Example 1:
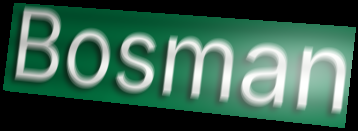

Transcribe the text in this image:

Bosman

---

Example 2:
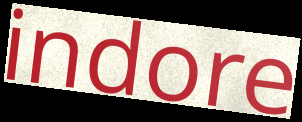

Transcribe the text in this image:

indore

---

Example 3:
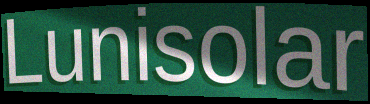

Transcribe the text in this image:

Lunisolar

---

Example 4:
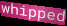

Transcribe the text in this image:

whipped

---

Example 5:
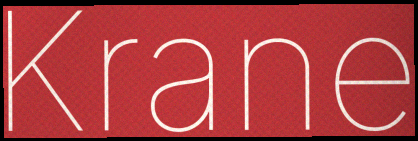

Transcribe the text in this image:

Krane